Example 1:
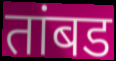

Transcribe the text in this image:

तांबड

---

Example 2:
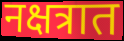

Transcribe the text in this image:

नक्षत्रात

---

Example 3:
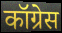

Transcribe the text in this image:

कॉग्रेस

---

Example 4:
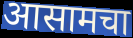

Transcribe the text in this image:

आसामचा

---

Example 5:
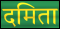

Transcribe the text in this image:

दमिता